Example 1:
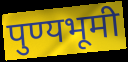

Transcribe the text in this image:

पुण्यभूमी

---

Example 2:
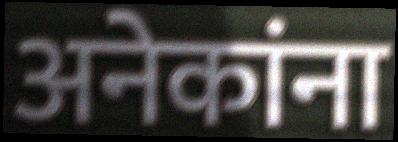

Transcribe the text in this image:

अनेकांना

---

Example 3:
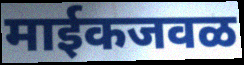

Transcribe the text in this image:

माईकजवळ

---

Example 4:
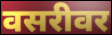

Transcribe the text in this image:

वसरीवर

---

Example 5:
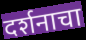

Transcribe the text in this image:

दर्शनाचा